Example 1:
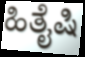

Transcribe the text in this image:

ಹಿತೈಷಿ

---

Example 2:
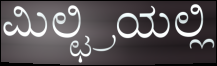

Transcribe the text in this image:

ಮಿಲ್ಟ್ರಿಯಲ್ಲಿ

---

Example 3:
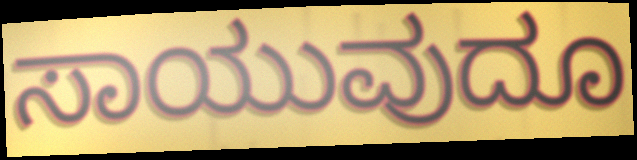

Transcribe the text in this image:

ಸಾಯುವುದೂ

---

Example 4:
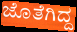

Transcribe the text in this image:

ಜೊತೆಗಿದ್ದ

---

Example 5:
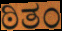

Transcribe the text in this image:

ಠಿತಂ